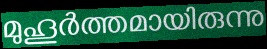
മുഹൂർത്തമായിരുന്നു